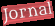
Jornal